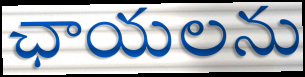
ఛాయలను